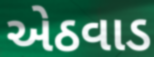
એઠવાડ